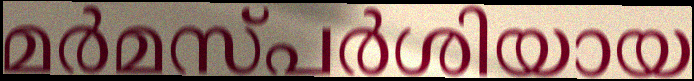
മർമസ്പർശിയായ